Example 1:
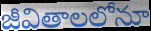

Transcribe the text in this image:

జీవితాలలోనూ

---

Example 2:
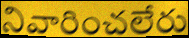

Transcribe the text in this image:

నివారించలేరు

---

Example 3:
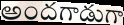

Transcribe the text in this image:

అందగాడుగా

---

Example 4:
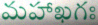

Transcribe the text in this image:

మహాఖగః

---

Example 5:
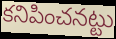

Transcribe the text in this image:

కనిపించనట్టు